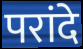
परांदे